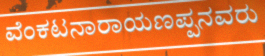
ವೆಂಕಟನಾರಾಯಣಪ್ಪನವರು